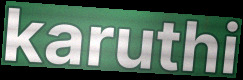
karuthi